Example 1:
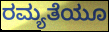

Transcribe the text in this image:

ರಮ್ಯತೆಯೂ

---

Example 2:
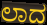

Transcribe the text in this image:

ಲಾದ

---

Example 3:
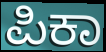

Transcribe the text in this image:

ಪಿಕಾ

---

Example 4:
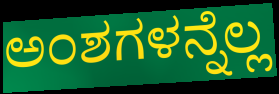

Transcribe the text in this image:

ಅಂಶಗಳನ್ನೆಲ್ಲ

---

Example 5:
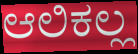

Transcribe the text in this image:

ಆಲಿಕಲ್ಲ